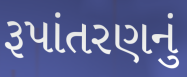
રૂપાંતરણનું